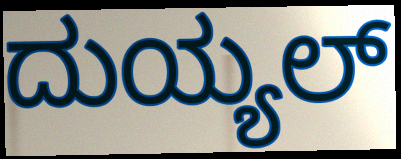
ದುಯ್ಯಲ್